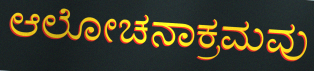
ಆಲೋಚನಾಕ್ರಮವು